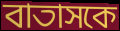
বাতাসকে